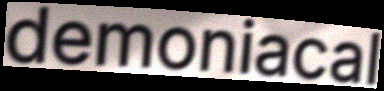
demoniacal